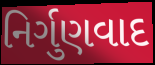
નિર્ગુણવાદ